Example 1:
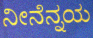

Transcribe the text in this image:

ನೀನೆನ್ನಯ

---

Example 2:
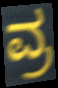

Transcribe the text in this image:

ವ್ರ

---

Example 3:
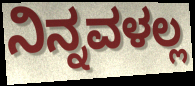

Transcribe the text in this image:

ನಿನ್ನವಳಲ್ಲ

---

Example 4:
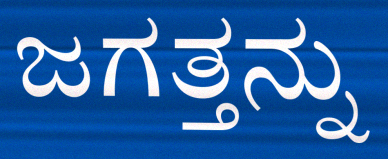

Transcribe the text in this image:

ಜಗತ್ತನ್ನು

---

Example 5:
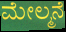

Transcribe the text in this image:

ಮೇಲ್ಮನೆ